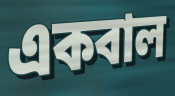
একবাল